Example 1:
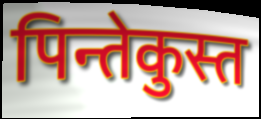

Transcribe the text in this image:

पिन्तेकुस्त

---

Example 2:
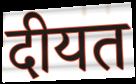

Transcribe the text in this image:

दीयत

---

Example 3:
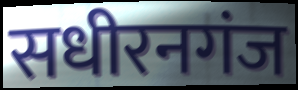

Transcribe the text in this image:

सधीरनगंज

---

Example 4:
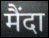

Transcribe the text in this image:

मैंदा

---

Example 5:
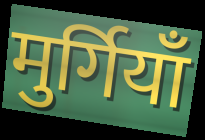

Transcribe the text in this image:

मुर्गियाँ